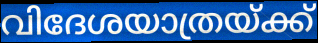
വിദേശയാത്രയ്ക്ക്